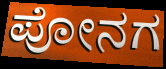
ಪೋನಗ